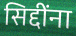
सिद्दींना